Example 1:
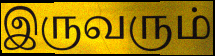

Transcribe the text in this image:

இருவரும்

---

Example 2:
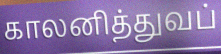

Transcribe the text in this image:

காலனித்துவப்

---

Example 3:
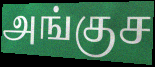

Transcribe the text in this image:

அங்குச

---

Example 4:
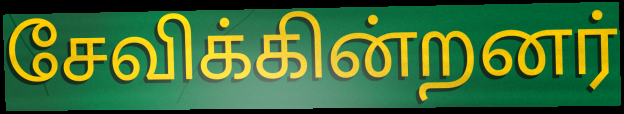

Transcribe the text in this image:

சேவிக்கின்றனர்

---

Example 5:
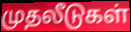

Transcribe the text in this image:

முதலீடுகள்